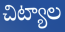
చిట్యాల